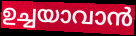
ഉച്ചയാവാൻ